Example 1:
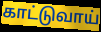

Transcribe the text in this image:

காட்டுவாய்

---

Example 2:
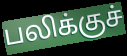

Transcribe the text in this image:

பலிக்குச்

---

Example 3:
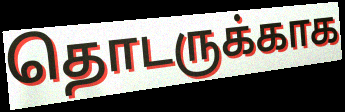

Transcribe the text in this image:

தொடருக்காக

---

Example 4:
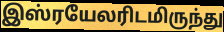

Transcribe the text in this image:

இஸ்ரயேலரிடமிருந்து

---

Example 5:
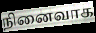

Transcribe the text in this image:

நினைவாக